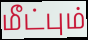
மீட்பும்